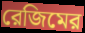
রেজিমের